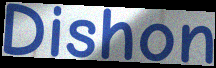
Dishon